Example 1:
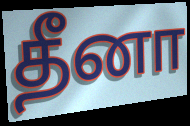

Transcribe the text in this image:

தீனா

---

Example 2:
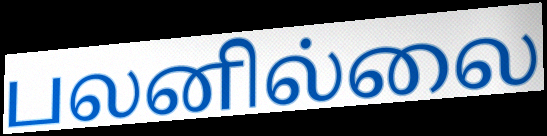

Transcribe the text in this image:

பலனில்லை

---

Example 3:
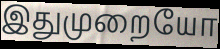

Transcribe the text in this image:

இதுமுறையோ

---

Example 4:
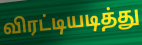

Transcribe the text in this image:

விரட்டியடித்து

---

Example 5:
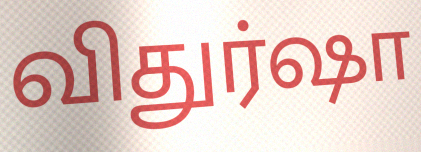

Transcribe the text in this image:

விதுர்ஷா